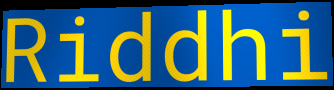
Riddhi